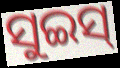
ସୁଇସ୍